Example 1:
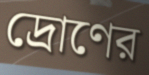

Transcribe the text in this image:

দ্রোণের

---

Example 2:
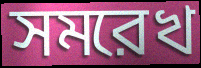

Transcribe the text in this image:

সমরেখ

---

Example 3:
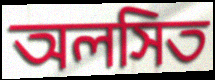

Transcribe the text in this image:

অলসিত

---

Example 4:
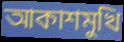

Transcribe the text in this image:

আকাশমুখি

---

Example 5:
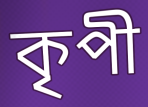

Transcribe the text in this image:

কৃপী